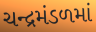
ચન્દ્રમંડળમાં